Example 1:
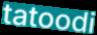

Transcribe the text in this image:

tatoodi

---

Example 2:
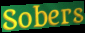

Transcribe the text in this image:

Sobers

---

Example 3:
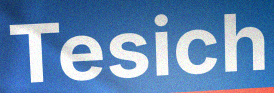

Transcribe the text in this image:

Tesich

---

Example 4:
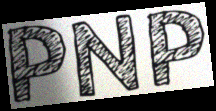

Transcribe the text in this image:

PNP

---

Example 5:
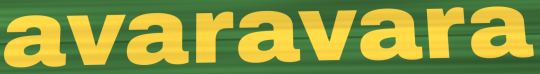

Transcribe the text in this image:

avaravara